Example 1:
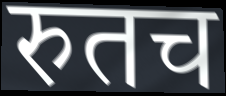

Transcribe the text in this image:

रुतच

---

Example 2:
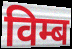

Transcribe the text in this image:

विम्ब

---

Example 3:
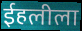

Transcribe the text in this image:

ईहलीला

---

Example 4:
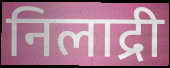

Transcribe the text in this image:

निलाद्री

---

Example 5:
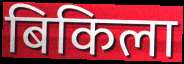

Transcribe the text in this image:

बिकिला